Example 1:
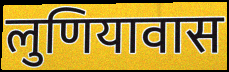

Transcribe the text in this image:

लुणियावास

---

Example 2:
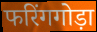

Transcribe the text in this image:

फरिंगगोड़ा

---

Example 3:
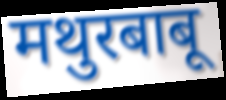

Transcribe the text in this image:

मथुरबाबू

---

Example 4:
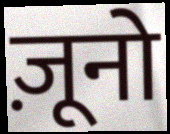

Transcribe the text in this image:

ज़ूनो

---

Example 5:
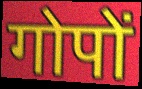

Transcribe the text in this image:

गोपों